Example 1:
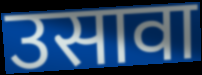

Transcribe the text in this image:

उसावा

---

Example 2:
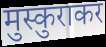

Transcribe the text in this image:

मुस्कुराकर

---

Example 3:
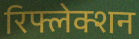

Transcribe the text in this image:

रिफ्लेक्शन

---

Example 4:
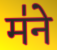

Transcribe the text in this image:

म॑ने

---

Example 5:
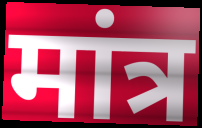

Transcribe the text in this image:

मांत्र